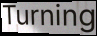
Turning